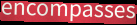
encompasses